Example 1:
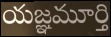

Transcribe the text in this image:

యజ్ఞమూర్తి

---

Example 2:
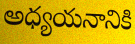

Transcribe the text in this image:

అధ్యయనానికి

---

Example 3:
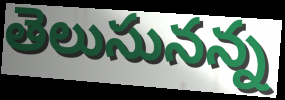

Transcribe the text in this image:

తెలుసునన్న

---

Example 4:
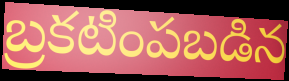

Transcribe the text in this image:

బ్రకటింపబడిన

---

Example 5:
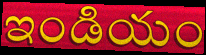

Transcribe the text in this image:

ఇండియం